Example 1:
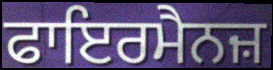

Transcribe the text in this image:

ਫਾਇਰਮੈਨਜ਼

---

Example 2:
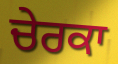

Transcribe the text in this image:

ਚੇਰਕਾ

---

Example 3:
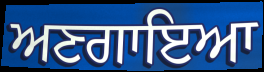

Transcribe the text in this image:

ਅਣਗਾਇਆ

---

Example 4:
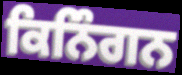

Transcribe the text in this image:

ਕਿਨਿੰਗਨ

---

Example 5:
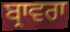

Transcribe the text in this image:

ਬ੍ਰਾਵਰਾ